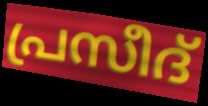
പ്രസീദ്